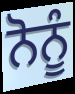
ਨੋਨੂੰ